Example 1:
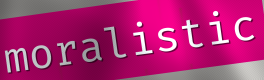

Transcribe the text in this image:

moralistic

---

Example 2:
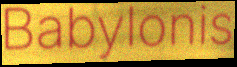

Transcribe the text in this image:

Babylonis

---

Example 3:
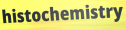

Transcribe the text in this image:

histochemistry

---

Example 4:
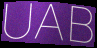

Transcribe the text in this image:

UAB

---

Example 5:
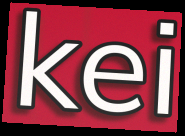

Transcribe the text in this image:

kei